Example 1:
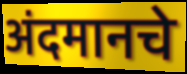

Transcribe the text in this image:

अंदमानचे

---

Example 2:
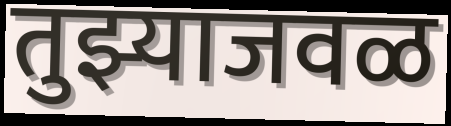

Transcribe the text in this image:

तुझ्याजवळ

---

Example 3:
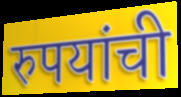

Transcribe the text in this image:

रुपयांची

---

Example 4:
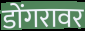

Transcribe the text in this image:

डोंगरावर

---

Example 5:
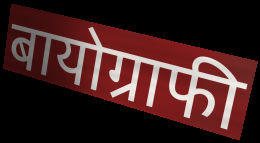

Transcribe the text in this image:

बायोग्राफी